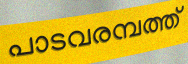
പാടവരമ്പത്ത്